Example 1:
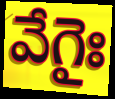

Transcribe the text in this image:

వేగైః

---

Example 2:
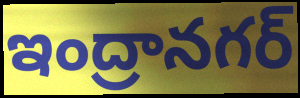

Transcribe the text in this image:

ఇంద్రానగర్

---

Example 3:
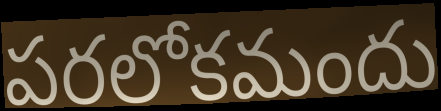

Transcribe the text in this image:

పరలోకమందు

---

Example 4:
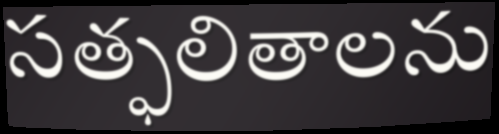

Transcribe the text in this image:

సత్ఫలితాలను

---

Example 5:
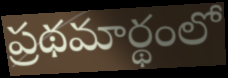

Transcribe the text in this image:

ప్రథమార్థంలో